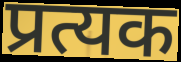
प्रत्यक